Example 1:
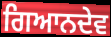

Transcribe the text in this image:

ਗਿਆਨਦੇਵ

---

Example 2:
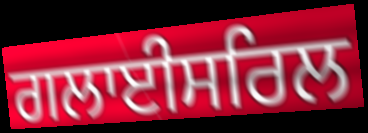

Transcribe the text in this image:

ਗਲਾਈਸਰਿਲ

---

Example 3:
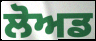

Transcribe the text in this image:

ਲੋਅਡ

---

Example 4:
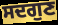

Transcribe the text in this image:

ਸਦਗੁਣ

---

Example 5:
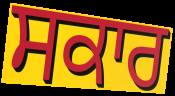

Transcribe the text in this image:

ਸਕਾਰ